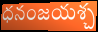
ధనంజయశ్చ